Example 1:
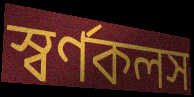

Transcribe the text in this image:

স্বর্ণকলস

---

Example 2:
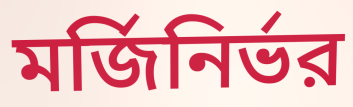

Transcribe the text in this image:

মর্জিনির্ভর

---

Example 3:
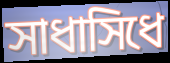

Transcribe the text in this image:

সাধাসিধে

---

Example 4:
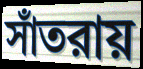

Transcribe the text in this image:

সাঁতরায়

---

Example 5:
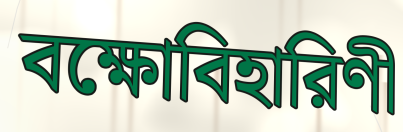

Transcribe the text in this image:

বক্ষোবিহারিণী